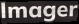
Imager